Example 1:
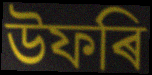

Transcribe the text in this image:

উফৰি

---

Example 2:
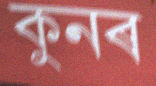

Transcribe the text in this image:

কুনৰ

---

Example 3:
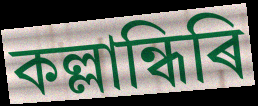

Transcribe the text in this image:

কল্লান্ধিৰি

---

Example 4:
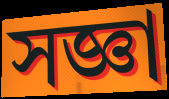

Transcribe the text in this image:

সজ্ঞা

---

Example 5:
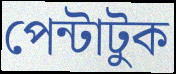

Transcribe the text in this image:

পেন্টাটুক